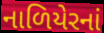
નાળિયેરનાં